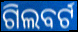
ଗିଲବର୍ଟ